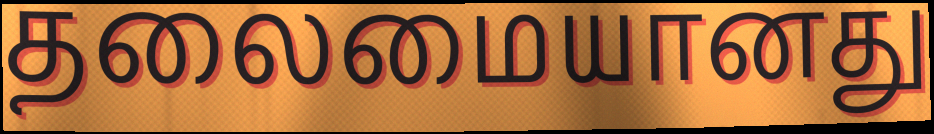
தலைமையானது